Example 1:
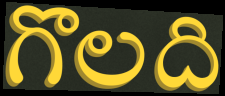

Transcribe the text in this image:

గొలది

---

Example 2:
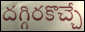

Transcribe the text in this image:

దగ్గిరకొచ్చే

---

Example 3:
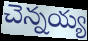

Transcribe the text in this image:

చెన్నయ్య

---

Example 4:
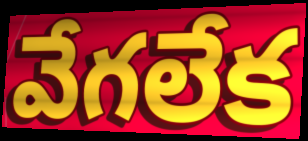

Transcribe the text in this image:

వేగలేక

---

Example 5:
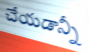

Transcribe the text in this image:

చేయడాన్నీ